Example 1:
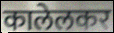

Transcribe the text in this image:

कालेलकर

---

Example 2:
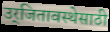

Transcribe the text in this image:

उर्जितावस्थेसाठी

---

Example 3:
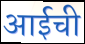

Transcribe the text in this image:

आईची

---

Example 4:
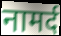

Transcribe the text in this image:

नामर्द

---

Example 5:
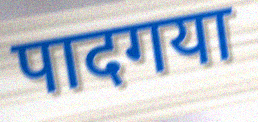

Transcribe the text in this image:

पादगया